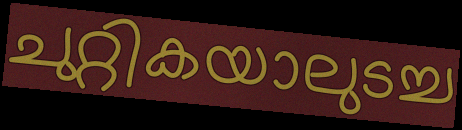
ചുറ്റികയാലുടച്ച